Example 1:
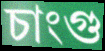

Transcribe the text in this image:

চাংগু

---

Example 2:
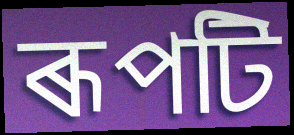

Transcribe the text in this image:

ৰূপটি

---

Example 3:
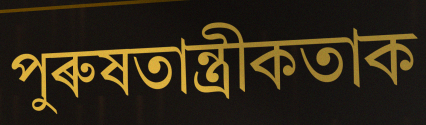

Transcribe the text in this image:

পুৰুষতান্ত্ৰীকতাক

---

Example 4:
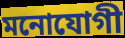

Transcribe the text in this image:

মনোযোগী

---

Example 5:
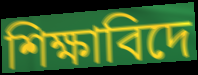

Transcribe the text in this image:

শিক্ষাবিদে